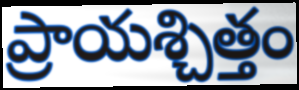
ప్రాయశ్చిత్తం